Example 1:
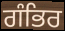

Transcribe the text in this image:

ਗੰਭਿਰ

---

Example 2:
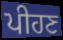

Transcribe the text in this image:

ਪੀਹਣ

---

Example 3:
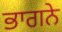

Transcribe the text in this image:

ਭਾਗਨੇ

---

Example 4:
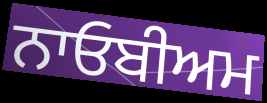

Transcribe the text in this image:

ਨਾਓਬੀਅਮ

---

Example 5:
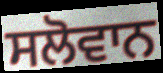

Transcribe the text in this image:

ਸਲੋਵਾਨ